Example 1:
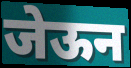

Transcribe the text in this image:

जेऊन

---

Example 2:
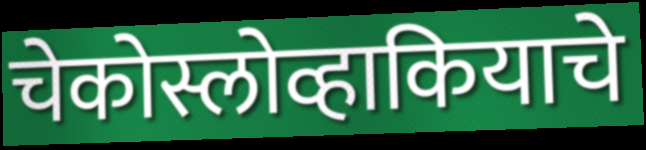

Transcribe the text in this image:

चेकोस्लोव्हाकियाचे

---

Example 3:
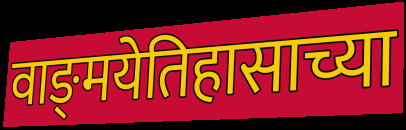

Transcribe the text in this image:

वाङ्‌मयेतिहासाच्या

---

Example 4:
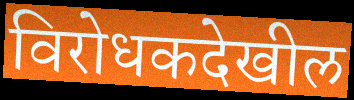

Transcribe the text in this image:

विरोधकदेखील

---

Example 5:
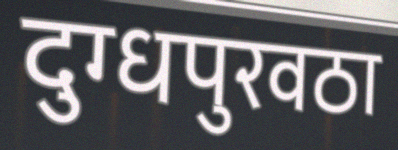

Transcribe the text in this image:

दुग्धपुरवठा